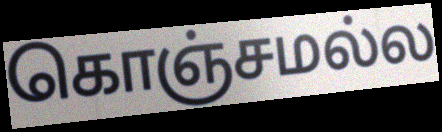
கொஞ்சமல்ல